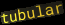
tubular